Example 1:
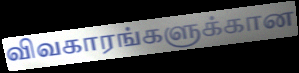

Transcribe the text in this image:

விவகாரங்களுக்கான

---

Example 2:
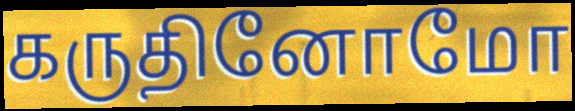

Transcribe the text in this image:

கருதினோமோ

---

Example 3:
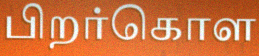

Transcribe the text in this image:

பிறர்கொள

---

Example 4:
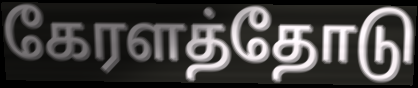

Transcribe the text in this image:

கேரளத்தோடு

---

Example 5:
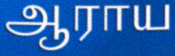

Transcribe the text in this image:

ஆராய